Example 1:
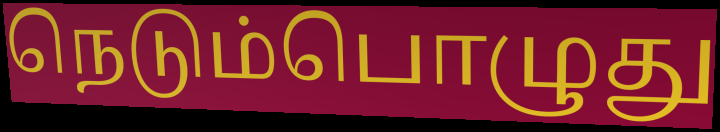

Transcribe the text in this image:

நெடும்பொழுது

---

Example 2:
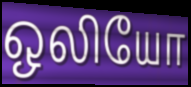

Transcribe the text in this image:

ஒலியோ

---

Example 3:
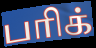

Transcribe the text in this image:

பரிக்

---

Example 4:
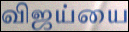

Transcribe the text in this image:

விஜய்யை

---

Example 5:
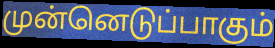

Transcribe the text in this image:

முன்னெடுப்பாகும்